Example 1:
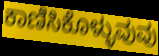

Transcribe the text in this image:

ಕಾಣಿಸಿಕೊಳ್ಳುವುವು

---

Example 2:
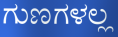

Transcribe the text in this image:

ಗುಣಗಳಲ್ಲ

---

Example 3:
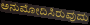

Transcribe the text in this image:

ಅನುಮೋದಿಸಿರುವುದು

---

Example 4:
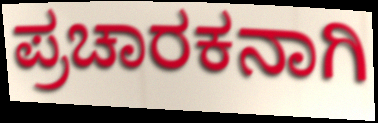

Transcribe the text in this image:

ಪ್ರಚಾರಕನಾಗಿ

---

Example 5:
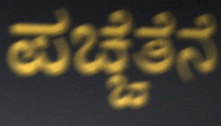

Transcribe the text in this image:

ಪಚ್ಚೆತೆನೆ